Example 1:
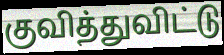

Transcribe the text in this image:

குவித்துவிட்டு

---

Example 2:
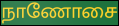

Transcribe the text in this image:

நாணோசை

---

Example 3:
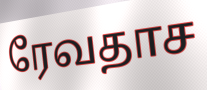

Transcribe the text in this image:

ரேவதாச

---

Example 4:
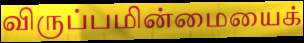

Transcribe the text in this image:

விருப்பமின்மையைக்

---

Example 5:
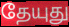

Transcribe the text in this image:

தேயுது